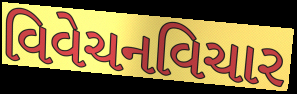
વિવેચનવિચાર